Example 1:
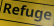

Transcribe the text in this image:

Refuge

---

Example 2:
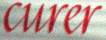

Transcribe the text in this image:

curer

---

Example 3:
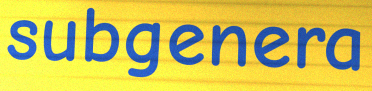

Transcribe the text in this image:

subgenera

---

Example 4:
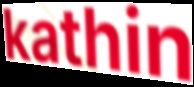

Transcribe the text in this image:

kathin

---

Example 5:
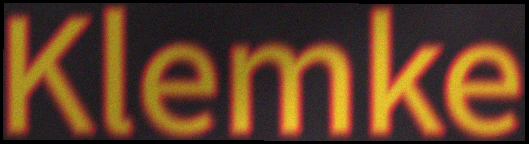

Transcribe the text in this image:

Klemke